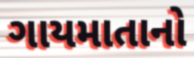
ગાયમાતાનો